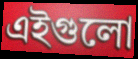
এইগুলো